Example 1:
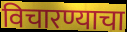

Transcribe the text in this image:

विचारण्याचा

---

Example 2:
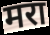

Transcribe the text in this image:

मरा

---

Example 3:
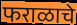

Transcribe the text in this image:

फराळाचे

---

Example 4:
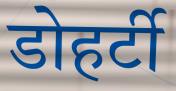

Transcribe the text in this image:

डोहर्टी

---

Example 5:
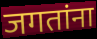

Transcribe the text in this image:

जगतांना